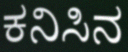
ಕನಿಸಿನ